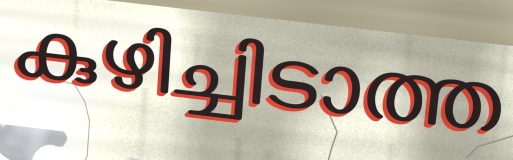
കുഴിച്ചിടാത്ത